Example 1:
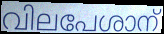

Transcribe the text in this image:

വിലപേശാന്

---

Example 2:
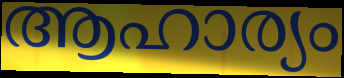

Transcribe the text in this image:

ആഹാര്യം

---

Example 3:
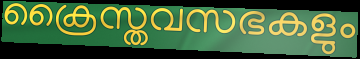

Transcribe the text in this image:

ക്രൈസ്തവസഭകളും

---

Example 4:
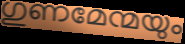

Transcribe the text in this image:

ഗുണമേന്മയും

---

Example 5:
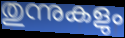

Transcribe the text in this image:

തുന്നുകളും